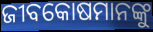
ଜୀବକୋଷମାନଙ୍କୁ